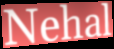
Nehal